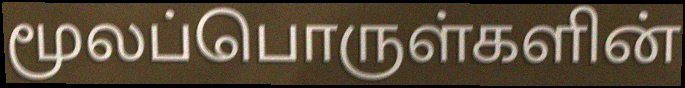
மூலப்பொருள்களின்